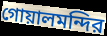
গোয়ালমন্দির